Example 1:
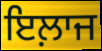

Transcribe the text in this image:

ਇਲ਼ਾਜ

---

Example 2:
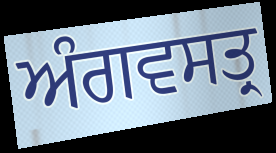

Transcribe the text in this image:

ਅੰਗਵਸਤ੍ਰ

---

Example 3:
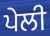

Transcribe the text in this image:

ਪੇਲੀ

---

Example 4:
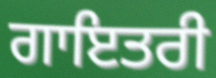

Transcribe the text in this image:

ਗਾਇਤਰੀ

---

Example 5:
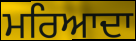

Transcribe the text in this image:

ਮਰਿਆਦਾ